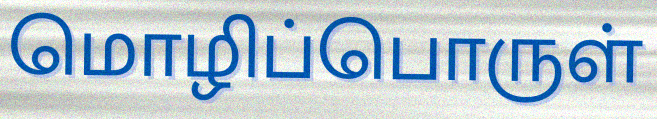
மொழிப்பொருள்